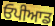
ਓਪੀਆਡ